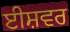
ਈਸ਼ਵਰ